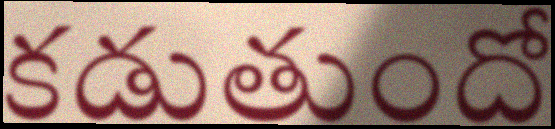
కడుతుందో